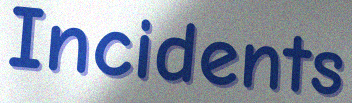
Incidents